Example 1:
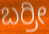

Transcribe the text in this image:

ಬರ್ರೀ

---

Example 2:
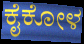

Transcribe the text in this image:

ಕೈಕೋಳ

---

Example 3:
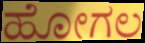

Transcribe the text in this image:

ಹೋಗಲ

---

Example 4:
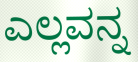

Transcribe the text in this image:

ಎಲ್ಲವನ್ನ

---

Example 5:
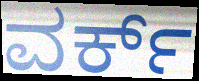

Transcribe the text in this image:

ವರ್ಕ್